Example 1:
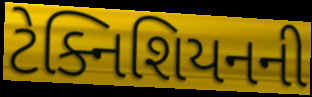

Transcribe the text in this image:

ટેક્નિશિયનની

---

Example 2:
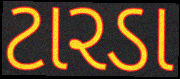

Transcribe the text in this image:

ટારડા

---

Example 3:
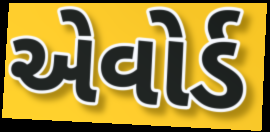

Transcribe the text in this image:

એવોર્ડ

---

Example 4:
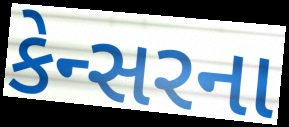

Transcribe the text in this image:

કેન્સરના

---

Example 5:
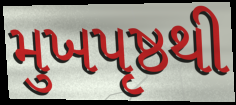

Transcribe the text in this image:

મુખપૃષ્ઠથી